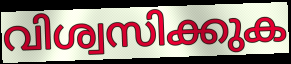
വിശ്വസിക്കുക